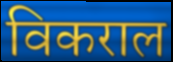
विकराल